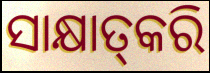
ସାକ୍ଷାତ୍‌କରି